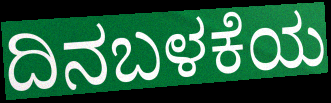
ದಿನಬಳಕೆಯ